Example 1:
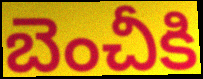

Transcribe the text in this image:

బెంచీకి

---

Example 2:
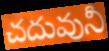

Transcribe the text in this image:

చదువునీ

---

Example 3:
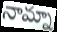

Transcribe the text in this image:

నామ్నా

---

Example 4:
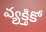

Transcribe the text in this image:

వ్యక్తికో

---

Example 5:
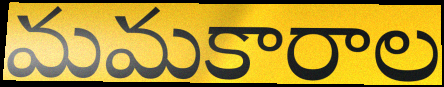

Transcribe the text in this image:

మమకారాల